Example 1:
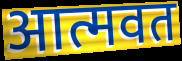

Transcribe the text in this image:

आत्मवत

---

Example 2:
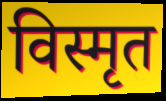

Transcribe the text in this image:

विस्मृत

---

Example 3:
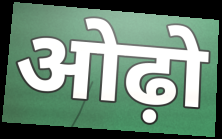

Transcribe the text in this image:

ओढ़ो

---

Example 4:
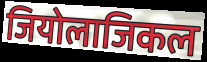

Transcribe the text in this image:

जियोलाजिकल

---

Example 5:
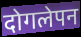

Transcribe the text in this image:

दोगलेपन